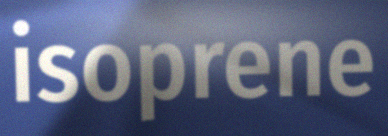
isoprene